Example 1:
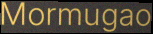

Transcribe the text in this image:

Mormugao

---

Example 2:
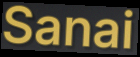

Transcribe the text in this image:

Sanai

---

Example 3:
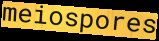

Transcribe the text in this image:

meiospores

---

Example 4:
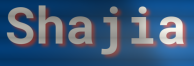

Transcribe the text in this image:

Shajia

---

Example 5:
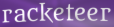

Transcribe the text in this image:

racketeer